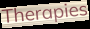
Therapies